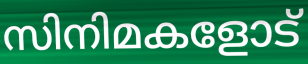
സിനിമകളോട്